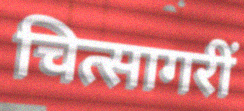
चित्सागरीं